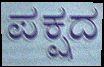
ಪಕ್ಷದ